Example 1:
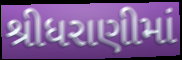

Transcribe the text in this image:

શ્રીધરાણીમાં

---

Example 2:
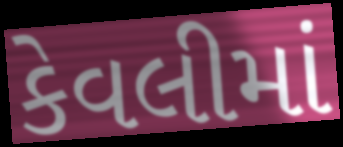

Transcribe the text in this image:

કેવલીમાં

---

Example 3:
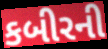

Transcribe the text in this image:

કબીરની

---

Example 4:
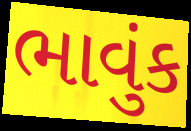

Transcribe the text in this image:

ભાવુંક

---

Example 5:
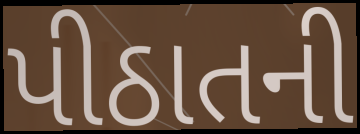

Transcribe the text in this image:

પીઠાતની